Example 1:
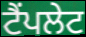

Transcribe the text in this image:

ਟੈਂਪਲੇਟ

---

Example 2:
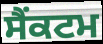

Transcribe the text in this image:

ਸੈੰਕਟਮ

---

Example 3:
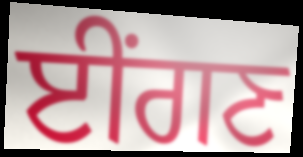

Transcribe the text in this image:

ਈਂਗਣ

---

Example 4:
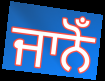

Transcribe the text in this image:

ਜਾਨੋਁ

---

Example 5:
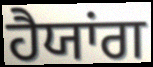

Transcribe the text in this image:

ਹੈਯਾਂਗ